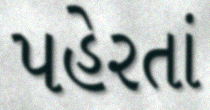
પહેરતાં